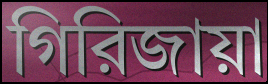
গিরিজায়া